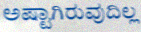
ಅಷ್ಟಾಗಿರುವುದಿಲ್ಲ